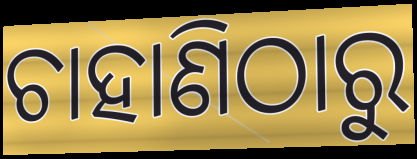
ଚାହାଣିଠାରୁ